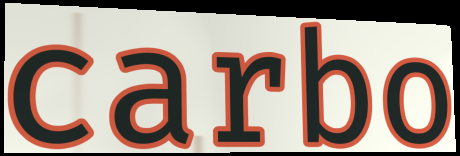
carbo